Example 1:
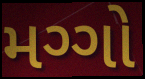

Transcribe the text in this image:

મગ્ગો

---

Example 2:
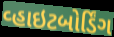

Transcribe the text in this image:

વ્હાઇટબોર્ડિંગ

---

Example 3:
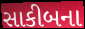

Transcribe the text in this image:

સાકીબના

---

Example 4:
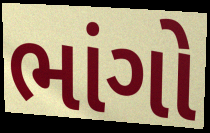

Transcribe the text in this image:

ભાંગો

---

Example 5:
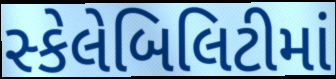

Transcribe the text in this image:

સ્કેલેબિલિટીમાં